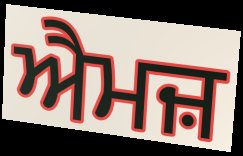
ਐਮਜ਼